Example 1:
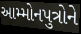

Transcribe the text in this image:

આમ્મોનપુત્રોને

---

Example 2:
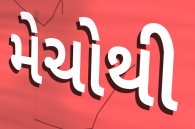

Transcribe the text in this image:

મેચોથી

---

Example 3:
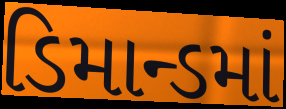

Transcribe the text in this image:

ડિમાન્ડમાં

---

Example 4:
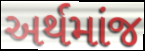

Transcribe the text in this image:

અર્થમાંજ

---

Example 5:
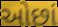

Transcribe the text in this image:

ઓછાં